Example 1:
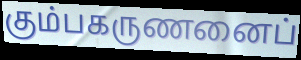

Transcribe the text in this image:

கும்பகருணனைப்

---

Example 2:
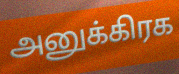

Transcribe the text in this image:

அனுக்கிரக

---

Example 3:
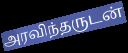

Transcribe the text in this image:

அரவிந்தருடன்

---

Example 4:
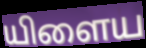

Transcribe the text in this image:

யிளைய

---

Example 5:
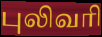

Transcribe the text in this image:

புலிவரி